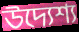
উদ্যেশ্য